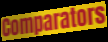
Comparators